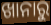
ଖାନାରୁ